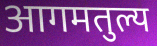
आगमतुल्य